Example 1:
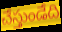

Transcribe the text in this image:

చేస్తుండేది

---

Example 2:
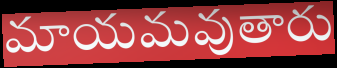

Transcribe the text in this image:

మాయమవుతారు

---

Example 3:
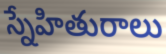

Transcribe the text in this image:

స్నేహితురాలు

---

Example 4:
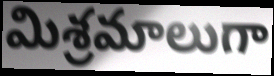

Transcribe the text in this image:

మిశ్రమాలుగా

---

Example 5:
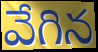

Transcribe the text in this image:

వేగిన